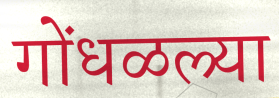
गोंधळल्या